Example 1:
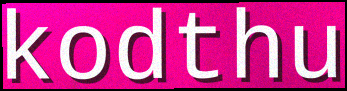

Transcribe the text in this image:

kodthu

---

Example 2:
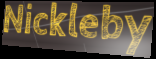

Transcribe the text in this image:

Nickleby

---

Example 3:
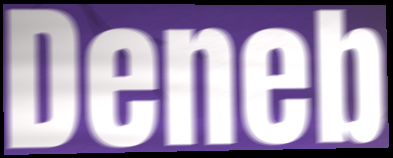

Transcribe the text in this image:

Deneb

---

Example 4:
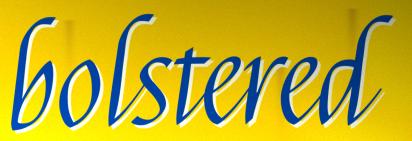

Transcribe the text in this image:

bolstered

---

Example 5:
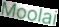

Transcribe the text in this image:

Moolai